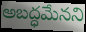
అబద్ధమేనని